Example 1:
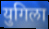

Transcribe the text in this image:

युगिला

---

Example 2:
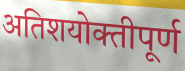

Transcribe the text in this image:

अतिशयोक्तीपूर्ण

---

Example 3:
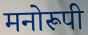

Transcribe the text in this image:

मनोरूपी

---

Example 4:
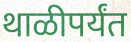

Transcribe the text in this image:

थाळीपर्यंत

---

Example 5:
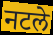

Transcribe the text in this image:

नटले